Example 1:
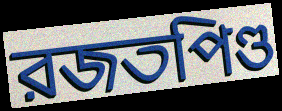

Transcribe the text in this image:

রজতপিণ্ড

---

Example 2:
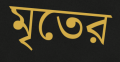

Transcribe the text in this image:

মৃতের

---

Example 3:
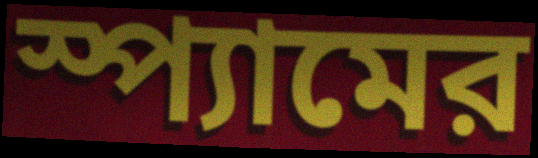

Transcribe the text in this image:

স্প্যামের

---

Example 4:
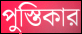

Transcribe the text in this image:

পুস্তিকার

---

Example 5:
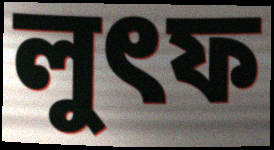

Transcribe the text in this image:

লুৎফ